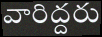
వారిద్దరు